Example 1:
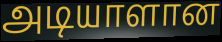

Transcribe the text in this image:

அடியாளான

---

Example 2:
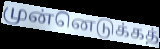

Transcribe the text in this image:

முன்னெடுக்கத்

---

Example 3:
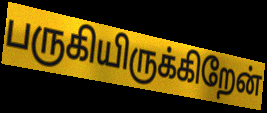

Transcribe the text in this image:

பருகியிருக்கிறேன்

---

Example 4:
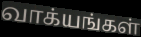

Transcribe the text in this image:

வாக்யங்கள்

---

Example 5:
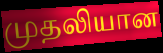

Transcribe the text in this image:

முதலியான